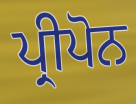
ਪ੍ਰੀਪੋਨ